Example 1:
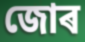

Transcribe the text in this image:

জোৰ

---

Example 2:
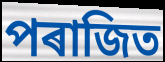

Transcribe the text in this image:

পৰাজিত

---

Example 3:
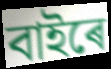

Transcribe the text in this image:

বাইৰে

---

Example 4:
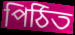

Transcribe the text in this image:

পিঠিত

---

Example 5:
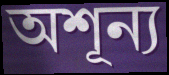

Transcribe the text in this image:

অশূন্য